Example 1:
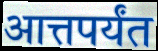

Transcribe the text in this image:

आत्तपर्यंत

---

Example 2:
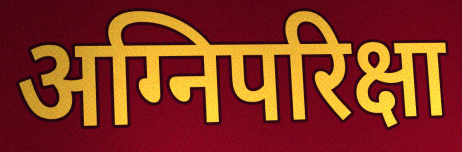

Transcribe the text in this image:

अग्निपरिक्षा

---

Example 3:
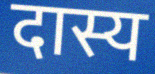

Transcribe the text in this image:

दास्य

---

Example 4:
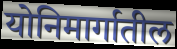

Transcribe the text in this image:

योनिमार्गातील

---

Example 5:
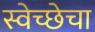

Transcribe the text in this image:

स्वेच्छेचा